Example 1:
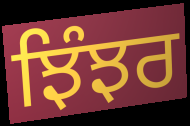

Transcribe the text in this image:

ਝਿੰਝਰ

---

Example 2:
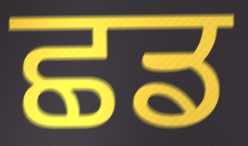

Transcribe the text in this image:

ਛਡ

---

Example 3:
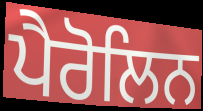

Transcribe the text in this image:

ਪੈਰੋਲਿਨ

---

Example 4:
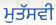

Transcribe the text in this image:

ਮੁਤੱਸਵੀ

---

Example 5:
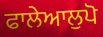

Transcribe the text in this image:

ਫਾਲੇਆਲੁਪੋ